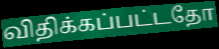
விதிக்கப்பட்டதோ